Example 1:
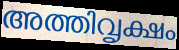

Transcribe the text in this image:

അത്തിവൃക്ഷം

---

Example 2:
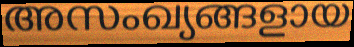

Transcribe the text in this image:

അസംഖ്യങ്ങളായ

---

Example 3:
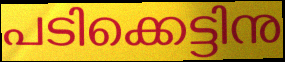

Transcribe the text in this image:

പടിക്കെട്ടിനു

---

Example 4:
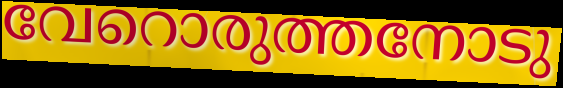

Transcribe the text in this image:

വേറൊരുത്തനോടു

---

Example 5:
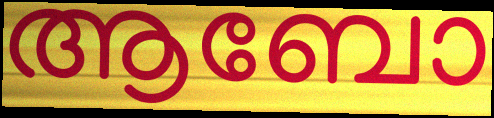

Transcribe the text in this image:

ആബോ